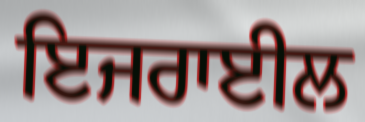
ਇਜਰਾਈਲ